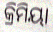
କ୍ରିମିୟା